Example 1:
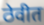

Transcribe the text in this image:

ठेवीत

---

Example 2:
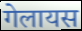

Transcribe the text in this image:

गेलायस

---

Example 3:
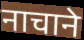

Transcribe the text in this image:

नाचाने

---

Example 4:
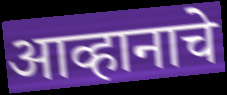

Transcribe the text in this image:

आव्हानाचे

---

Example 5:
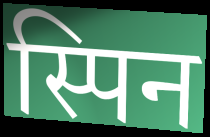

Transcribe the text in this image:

स्पिन